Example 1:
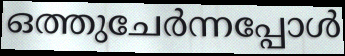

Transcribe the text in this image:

ഒത്തുചേർന്നപ്പോൾ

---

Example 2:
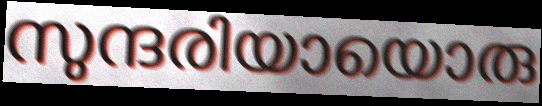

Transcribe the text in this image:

സുന്ദരിയായൊരു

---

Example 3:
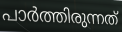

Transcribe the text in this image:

പാർത്തിരുന്നത്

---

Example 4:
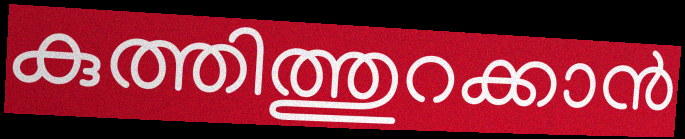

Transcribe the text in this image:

കുത്തിത്തുറക്കാൻ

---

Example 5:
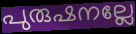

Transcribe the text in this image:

പുരുഷനല്ലേ